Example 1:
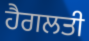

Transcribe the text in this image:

ਹੈਗਲਤੀ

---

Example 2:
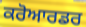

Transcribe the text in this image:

ਕਰੋਆਰਡਰ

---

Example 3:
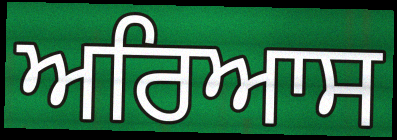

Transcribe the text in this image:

ਅਰਿਆਸ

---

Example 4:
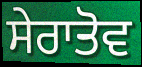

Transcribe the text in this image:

ਸੇਰਾਤੋਵ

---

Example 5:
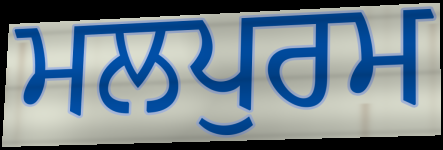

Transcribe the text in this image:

ਮਲਪੁਰਮ